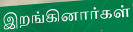
இறங்கினார்கள்